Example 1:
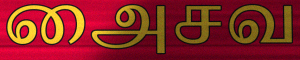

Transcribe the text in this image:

அைசவ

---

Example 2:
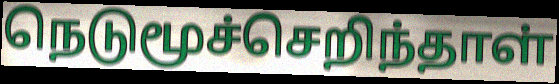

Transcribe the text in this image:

நெடுமூச்செறிந்தாள்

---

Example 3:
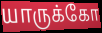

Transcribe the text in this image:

யாருக்கோ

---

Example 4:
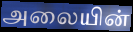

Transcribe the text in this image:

அலையின்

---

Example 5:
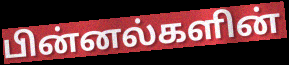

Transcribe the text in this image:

பின்னல்களின்